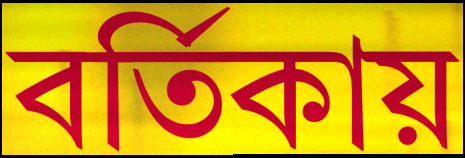
বর্তিকায়